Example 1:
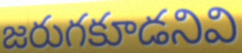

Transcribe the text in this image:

జరుగకూడనివి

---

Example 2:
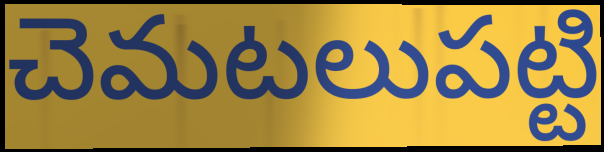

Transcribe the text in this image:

చెమటలుపట్టి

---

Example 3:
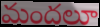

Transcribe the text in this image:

మందలూ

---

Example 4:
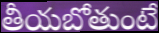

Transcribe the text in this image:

తీయబోతుంటే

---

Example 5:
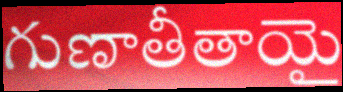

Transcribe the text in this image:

గుణాతీతాయై